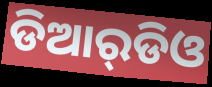
ଡିଆର୍‌ଡିଓ